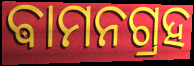
ଵାମନଗ୍ରହ